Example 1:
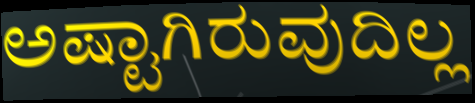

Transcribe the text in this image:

ಅಷ್ಟಾಗಿರುವುದಿಲ್ಲ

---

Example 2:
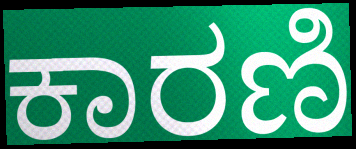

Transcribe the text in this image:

ಕಾರಣಿ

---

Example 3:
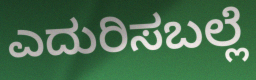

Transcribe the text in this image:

ಎದುರಿಸಬಲ್ಲೆ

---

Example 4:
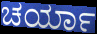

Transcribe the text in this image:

ಚರ್ಯಾ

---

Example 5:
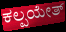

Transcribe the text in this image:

ಕಲ್ಪಯೇತ್